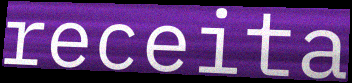
receita